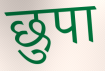
छुपा